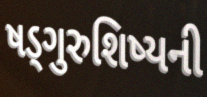
ષડ્ગુરુશિષ્યની